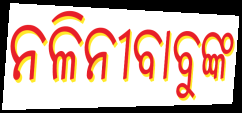
ନଳିନୀବାବୁଙ୍କ